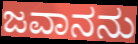
ಜವಾನನು